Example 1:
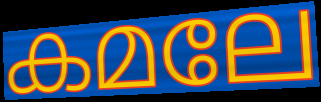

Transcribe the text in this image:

കമലേ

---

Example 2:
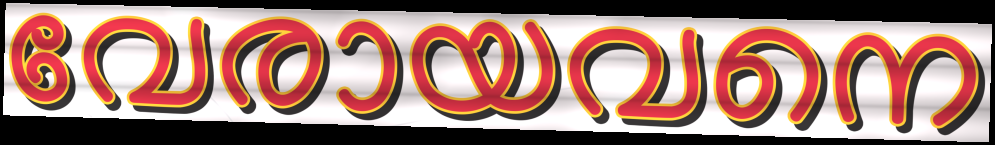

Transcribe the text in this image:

വേരായവനെ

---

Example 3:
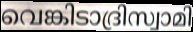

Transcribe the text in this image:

വെങ്കിടാദ്രിസ്വാമി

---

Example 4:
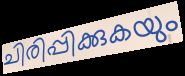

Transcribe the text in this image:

ചിരിപ്പിക്കുകയും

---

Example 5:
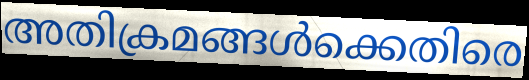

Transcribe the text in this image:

അതിക്രമങ്ങൾക്കെതിരെ